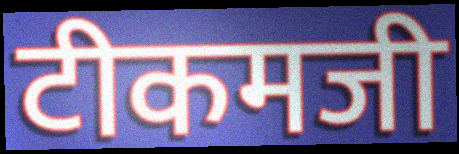
टीकमजी